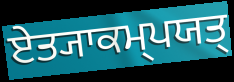
ਏਤ੍ਯਾਕਮ੍ਪਯਤ੍